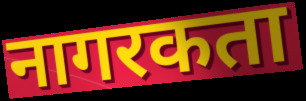
नागरकता